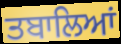
ਤਬਾਲਿਆਂ